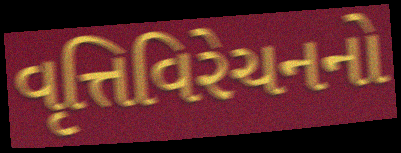
વૃત્તિવિરેચનનો